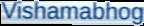
Vishamabhog